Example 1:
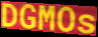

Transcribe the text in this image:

DGMOs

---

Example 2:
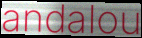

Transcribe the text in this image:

andalou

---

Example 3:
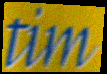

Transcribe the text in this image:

tim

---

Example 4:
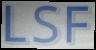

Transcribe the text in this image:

LSF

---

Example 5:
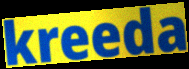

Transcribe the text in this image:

kreeda